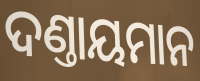
ଦଣ୍ତାୟମାନ